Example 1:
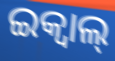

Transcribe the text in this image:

ଇକ୍ୱାଲ୍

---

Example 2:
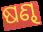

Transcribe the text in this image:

ଷଣ୍ଢ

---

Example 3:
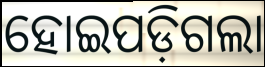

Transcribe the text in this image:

ହୋଇପଡ଼ିଗଲା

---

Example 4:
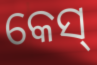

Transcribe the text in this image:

କେସ୍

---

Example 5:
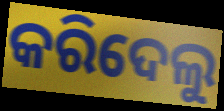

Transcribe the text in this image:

କରିଦେଲୁ